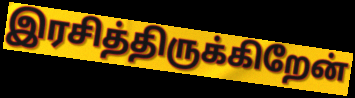
இரசித்திருக்கிறேன்